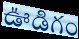
ఊడిగం